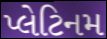
પ્લેટિનમ